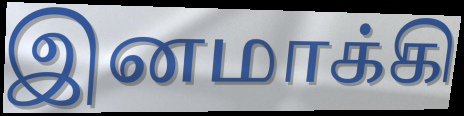
இனமாக்கி